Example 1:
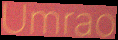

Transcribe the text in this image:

Umrao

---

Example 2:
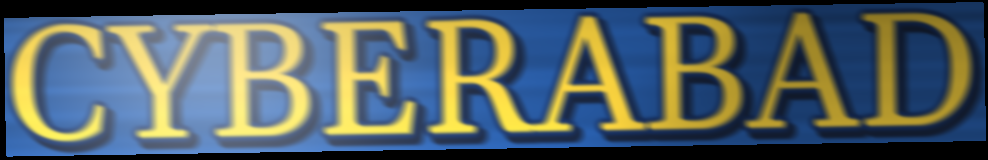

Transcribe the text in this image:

CYBERABAD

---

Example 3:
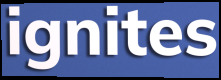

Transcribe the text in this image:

ignites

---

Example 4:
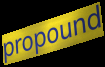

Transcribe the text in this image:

propound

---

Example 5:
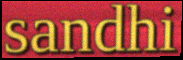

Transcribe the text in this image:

sandhi